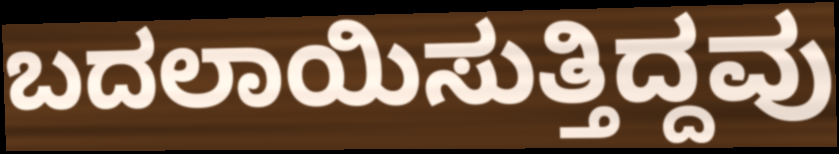
ಬದಲಾಯಿಸುತ್ತಿದ್ದವು